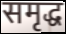
समृद्ध